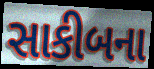
સાકીબના